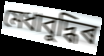
মেধাবুদ্ধিৰ